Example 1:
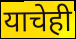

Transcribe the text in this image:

याचेही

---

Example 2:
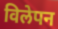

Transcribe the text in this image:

विलेपन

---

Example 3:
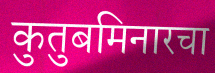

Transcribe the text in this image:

कुतुबमिनारचा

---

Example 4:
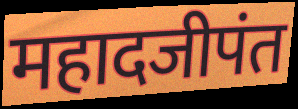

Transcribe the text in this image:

महादजीपंत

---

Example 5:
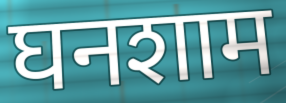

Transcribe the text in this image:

घनशाम